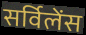
सर्विलेंस